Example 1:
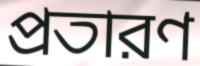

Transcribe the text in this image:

প্রতারণ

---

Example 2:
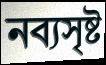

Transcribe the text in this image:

নব্যসৃষ্ট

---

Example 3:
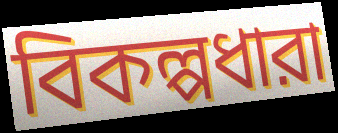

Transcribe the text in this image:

বিকল্পধারা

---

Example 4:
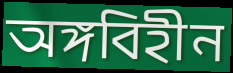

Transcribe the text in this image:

অঙ্গবিহীন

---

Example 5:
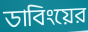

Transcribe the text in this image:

ডাবিংয়ের